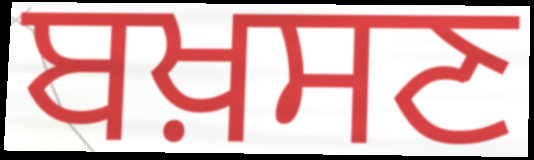
ਬਖ਼ਸਣ